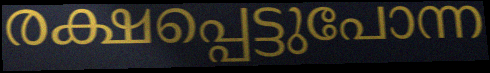
രക്ഷപ്പെട്ടുപോന്ന